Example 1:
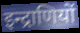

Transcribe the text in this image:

इन्द्राणियों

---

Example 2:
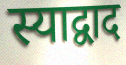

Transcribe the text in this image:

स्याद्वाद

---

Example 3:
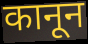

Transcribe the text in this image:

कानून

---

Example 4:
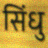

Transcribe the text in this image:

सिंधु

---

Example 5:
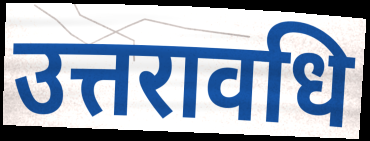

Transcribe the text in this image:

उत्तरावधि